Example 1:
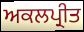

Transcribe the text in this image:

ਅਕਲਪ੍ਰੀਤ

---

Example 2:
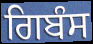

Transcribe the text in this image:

ਗਿਬੰਸ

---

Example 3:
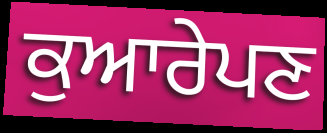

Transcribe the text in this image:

ਕੁਆਰੇਪਣ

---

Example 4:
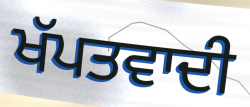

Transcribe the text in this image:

ਖੱਪਤਵਾਦੀ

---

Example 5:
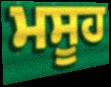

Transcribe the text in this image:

ਮਸੂਹ